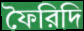
ফৈরিদি